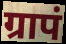
ग्रापं